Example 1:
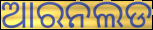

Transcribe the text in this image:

ଆରନଲଡ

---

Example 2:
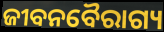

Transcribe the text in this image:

ଜୀବନବୈରାଗ୍ୟ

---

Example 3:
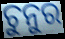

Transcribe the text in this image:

ଚୁନୁର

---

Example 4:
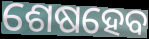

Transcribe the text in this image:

ଶେଷହେବ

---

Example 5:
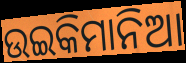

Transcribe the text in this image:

ଉଇକିମାନିଆ